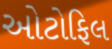
ઓટોફિલ